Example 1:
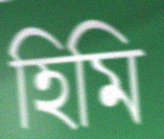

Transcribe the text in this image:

হিমি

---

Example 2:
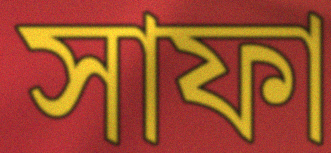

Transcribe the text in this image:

সাফা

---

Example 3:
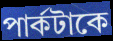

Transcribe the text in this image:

পার্কটাকে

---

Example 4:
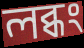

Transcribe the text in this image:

লব্ধং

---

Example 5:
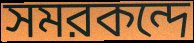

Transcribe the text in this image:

সমরকন্দে